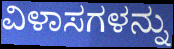
ವಿಳಾಸಗಳನ್ನು